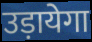
उड़ायेगा